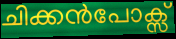
ചിക്കൻപോക്സ്